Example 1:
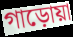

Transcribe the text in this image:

গাড়োয়া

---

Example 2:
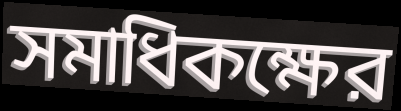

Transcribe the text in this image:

সমাধিকক্ষের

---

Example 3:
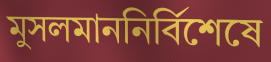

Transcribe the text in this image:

মুসলমাননির্বিশেষে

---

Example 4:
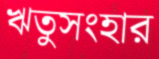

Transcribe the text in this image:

ঋতুসংহার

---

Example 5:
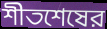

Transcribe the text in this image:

শীতশেষের